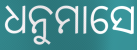
ଧନୁମାସେ